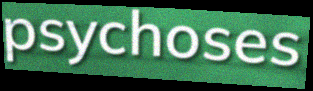
psychoses